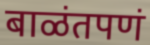
बाळंतपणं